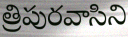
త్రిపురవాసిని